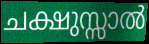
ചക്ഷുസ്സാൽ